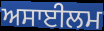
ਅਸਾਈਲਮ